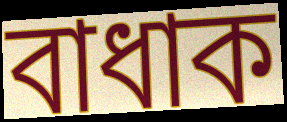
বাধাক